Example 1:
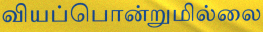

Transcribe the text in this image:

வியப்பொன்றுமில்லை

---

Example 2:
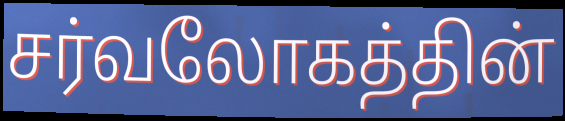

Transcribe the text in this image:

சர்வலோகத்தின்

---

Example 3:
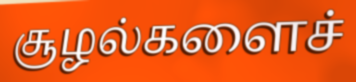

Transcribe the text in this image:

சூழல்களைச்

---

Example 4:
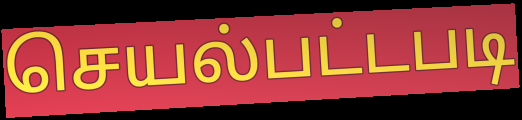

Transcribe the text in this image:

செயல்பட்டபடி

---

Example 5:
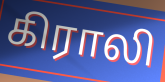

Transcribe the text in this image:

கிராலி